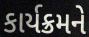
કાર્યક્રમને